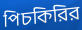
পিচকিরির